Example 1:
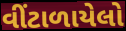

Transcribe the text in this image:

વીંટાળાયેલો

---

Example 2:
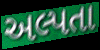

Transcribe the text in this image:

અલ્પતા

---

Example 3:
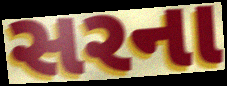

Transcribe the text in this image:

સરના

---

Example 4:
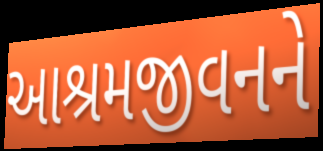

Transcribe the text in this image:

આશ્રમજીવનને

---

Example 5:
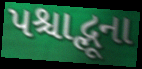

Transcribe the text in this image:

પશ્ચાદ્ભૂના